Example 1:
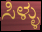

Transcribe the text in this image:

ಸಿಳ್ಳು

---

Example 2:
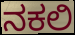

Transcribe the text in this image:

ನಕಲಿ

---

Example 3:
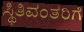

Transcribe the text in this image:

ಸ್ಥಿತಿವಂತರಿಗೆ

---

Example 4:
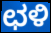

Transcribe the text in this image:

ಛಳಿ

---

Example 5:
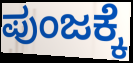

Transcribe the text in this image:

ಪುಂಜಕ್ಕೆ